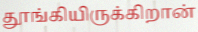
தூங்கியிருக்கிறான்